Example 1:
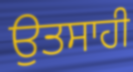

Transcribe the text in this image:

ਉਤਸਾਹੀ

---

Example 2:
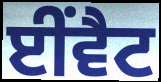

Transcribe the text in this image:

ਈਂਵੈਟ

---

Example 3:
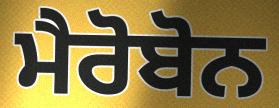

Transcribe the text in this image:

ਮੈਰੋਬੋਨ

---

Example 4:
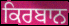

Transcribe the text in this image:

ਕਿਰਬਾਨ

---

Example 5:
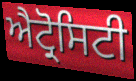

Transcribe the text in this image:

ਐਟ੍ਰੋਸਿਟੀ